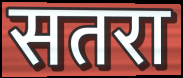
सतरा